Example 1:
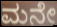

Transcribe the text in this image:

ಮನೇ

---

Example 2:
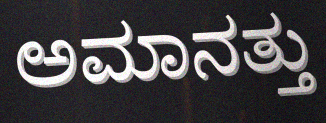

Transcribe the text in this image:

ಅಮಾನತ್ತು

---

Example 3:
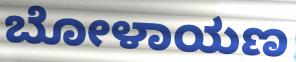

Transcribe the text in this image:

ಬೋಳಾಯಣ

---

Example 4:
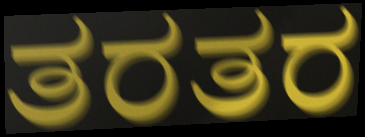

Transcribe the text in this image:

ತರತರ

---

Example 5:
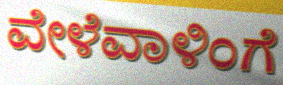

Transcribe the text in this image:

ವೇಳೆವಾಳಿಂಗೆ